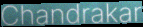
Chandrakar